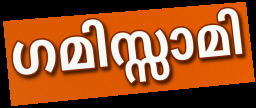
ഗമിസ്സാമി